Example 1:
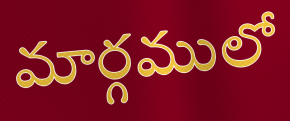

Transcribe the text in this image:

మార్గములో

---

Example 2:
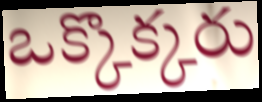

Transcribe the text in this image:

ఒక్కొక్కరు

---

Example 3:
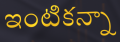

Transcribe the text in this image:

ఇంటికన్నా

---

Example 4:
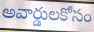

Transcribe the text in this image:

అవార్డులకోసం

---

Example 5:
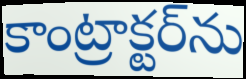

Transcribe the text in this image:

కాంట్రాక్టర్‌ను